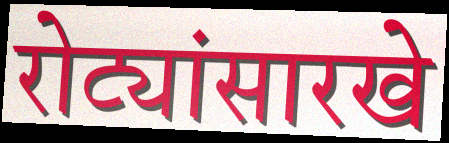
रोट्यांसारखे